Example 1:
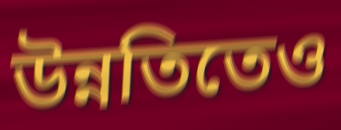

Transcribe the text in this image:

উন্নতিতেও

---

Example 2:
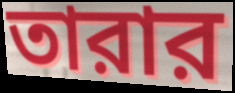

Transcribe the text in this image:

তারার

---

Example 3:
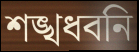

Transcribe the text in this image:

শঙ্খধবনি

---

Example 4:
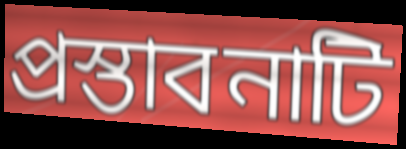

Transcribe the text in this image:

প্রস্তাবনাটি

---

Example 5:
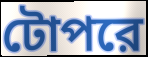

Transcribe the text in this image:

টোপরে